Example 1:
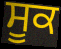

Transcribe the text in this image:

ਸੂਕ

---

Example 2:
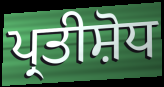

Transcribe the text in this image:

ਪ੍ਰਤੀਸ਼ੋਧ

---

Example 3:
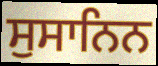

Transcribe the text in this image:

ਸੁਸਾਨਿਨ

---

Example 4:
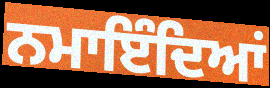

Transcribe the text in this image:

ਨਮਾਇੰਦਿਆਂ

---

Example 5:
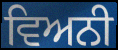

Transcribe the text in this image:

ਵਿਅਨੀ